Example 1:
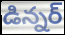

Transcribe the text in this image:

డిన్నర్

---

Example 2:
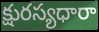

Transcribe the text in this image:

క్షురస్యధారా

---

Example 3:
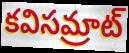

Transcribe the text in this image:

కవిసమ్రాట్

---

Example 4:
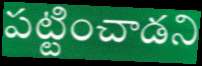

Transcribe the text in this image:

పట్టించాడని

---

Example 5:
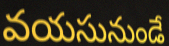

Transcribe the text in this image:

వయసునుండే